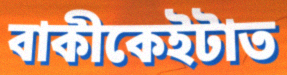
বাকীকেইটাত